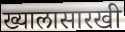
ख्यालासारखी